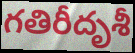
గతిరీదృశీ